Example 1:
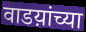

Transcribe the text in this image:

वाडय़ांच्या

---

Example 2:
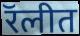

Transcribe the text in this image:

रॅलीत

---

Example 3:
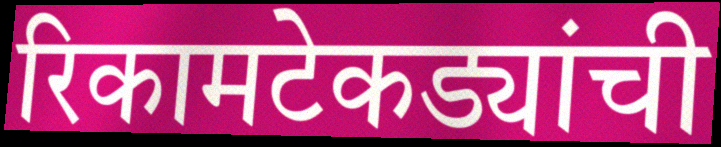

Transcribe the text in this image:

रिकामटेकड्यांची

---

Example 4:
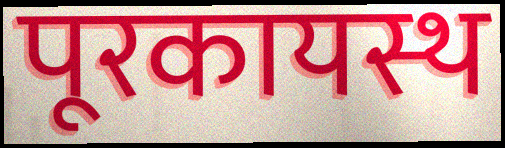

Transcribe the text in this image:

पूरकायस्थ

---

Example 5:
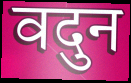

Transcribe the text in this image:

वदुन